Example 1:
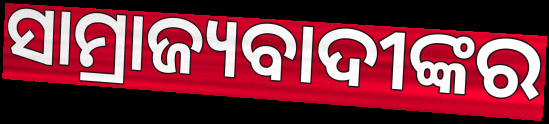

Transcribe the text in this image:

ସାମ୍ରାଜ୍ୟବାଦୀଙ୍କର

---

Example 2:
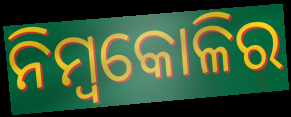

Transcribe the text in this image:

ନିମ୍ବକୋଳିର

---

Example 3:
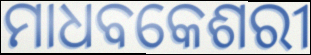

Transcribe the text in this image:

ମାଧବକେଶରୀ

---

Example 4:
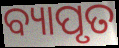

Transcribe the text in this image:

ବ୍ୟାପୃତ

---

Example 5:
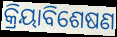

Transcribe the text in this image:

କ୍ରିୟାବିଶେଷଣ